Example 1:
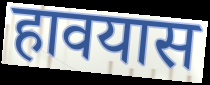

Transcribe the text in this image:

हावयास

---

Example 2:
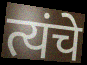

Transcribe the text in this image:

त्यंचे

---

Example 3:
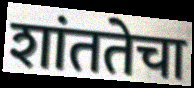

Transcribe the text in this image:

शांततेचा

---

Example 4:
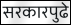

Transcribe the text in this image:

सरकारपुढे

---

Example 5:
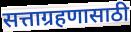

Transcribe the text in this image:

सत्ताग्रहणासाठी